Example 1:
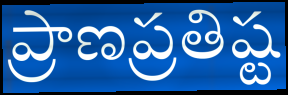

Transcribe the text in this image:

ప్రాణప్రతిష్ట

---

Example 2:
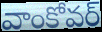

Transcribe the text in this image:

వాంకోవర్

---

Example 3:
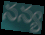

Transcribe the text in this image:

నన్య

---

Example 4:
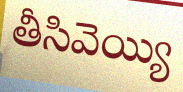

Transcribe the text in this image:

తీసివెయ్యి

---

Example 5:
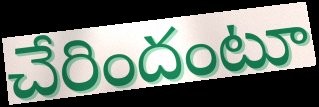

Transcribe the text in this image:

చేరిందంటూ